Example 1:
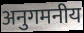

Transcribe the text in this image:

अनुगमनीय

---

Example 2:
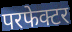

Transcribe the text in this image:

परफेक्टर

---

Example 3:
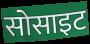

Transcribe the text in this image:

सोसाइट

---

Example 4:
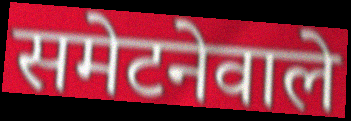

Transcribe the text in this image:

समेटनेवाले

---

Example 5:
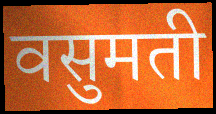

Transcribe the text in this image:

वसुमती